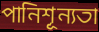
পানিশূন্যতা